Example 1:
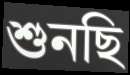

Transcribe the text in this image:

শুনছি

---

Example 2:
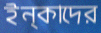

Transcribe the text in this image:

ইন্‌কাদের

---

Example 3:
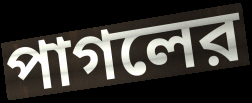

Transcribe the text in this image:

পাগলের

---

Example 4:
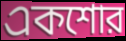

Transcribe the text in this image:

একশোর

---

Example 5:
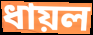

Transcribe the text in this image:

ধায়ল